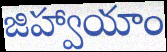
జిహ్వాయాం